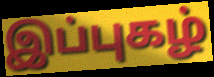
இப்புகழ்